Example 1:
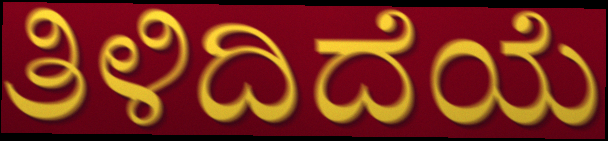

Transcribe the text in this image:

ತಿಳಿದಿದೆಯೆ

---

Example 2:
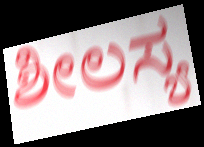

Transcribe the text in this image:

ಶೀಲಸ್ಯ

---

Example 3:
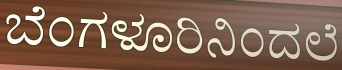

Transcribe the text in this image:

ಬೆಂಗಳೂರಿನಿಂದಲೆ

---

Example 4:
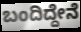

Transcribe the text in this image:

ಬಂದಿದ್ದೇನೆ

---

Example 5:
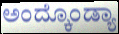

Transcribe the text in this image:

ಅಂದ್ಕೊಂಡ್ಯಾ